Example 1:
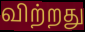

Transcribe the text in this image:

விற்றது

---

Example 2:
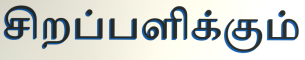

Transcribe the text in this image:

சிறப்பளிக்கும்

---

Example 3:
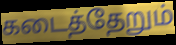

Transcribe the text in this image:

கடைத்தேறும்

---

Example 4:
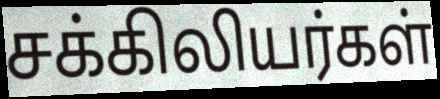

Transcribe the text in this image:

சக்கிலியர்கள்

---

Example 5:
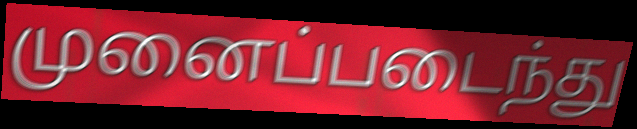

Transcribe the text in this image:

முனைப்படைந்து